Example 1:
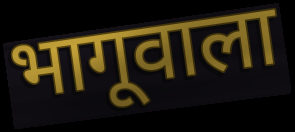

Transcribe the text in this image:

भागूवाला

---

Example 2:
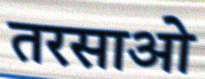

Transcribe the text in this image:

तरसाओ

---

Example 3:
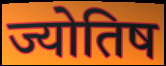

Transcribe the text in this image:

ज्योतिष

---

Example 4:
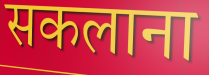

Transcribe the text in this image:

सकलाना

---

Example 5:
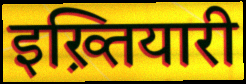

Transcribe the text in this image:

इख़्तियारी